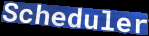
Scheduler